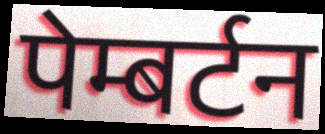
पेम्बर्टन